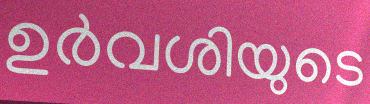
ഉർവശിയുടെ